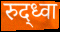
रुद्ध्वा